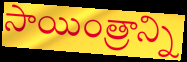
సాయింత్రాన్ని